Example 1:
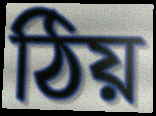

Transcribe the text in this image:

ঠিয়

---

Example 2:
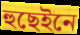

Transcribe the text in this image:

হুছেইনে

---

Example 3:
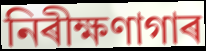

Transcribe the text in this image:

নিৰীক্ষণাগাৰ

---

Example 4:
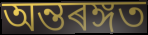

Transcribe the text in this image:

অন্তৰঙ্গত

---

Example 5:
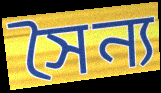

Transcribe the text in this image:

সৈন্য